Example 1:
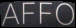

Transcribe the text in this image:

AFFO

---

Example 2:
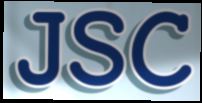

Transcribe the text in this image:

JSC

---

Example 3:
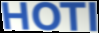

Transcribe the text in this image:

HOTI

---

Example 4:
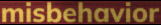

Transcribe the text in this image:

misbehavior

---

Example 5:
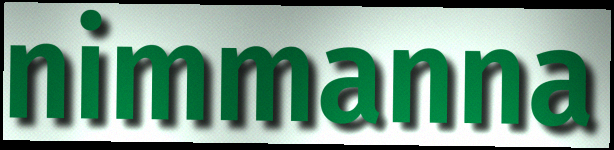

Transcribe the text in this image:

nimmanna